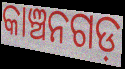
କାଞ୍ଚନଗଡ଼